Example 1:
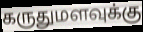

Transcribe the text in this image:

கருதுமளவுக்கு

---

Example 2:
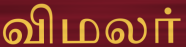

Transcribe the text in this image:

விமலர்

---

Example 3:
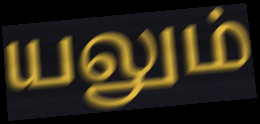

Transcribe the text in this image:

யலும்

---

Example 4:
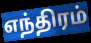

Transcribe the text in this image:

எந்திரம்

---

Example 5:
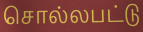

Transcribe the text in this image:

சொல்லபட்டு